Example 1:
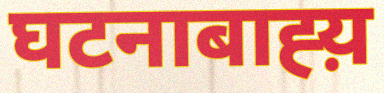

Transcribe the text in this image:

घटनाबाह्य़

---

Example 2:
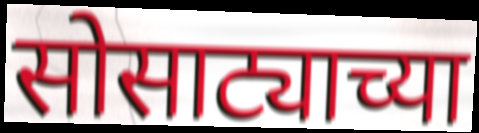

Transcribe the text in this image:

सोसाट्याच्या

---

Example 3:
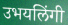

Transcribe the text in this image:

उभयलिंगी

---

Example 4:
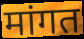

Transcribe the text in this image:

मांगत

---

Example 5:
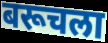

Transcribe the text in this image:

बरूचला